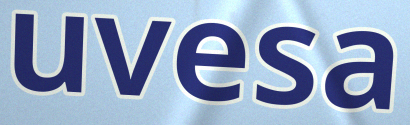
uvesa